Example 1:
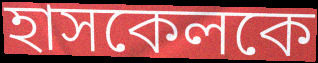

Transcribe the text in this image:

হাসকেলকে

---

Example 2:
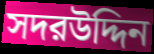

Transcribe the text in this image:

সদরউদ্দিন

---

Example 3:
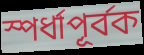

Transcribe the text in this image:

স্পর্ধাপূর্বক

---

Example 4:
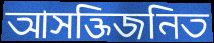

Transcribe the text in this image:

আসক্তিজনিত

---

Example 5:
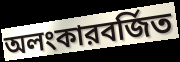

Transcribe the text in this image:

অলংকারবর্জিত